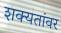
शक्यतांवर